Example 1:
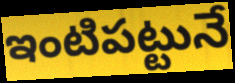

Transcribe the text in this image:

ఇంటిపట్టునే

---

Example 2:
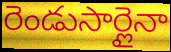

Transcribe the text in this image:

రెండుసార్లైనా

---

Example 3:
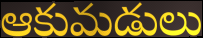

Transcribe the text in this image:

ఆకుమడులు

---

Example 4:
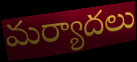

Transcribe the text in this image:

మర్యాదలు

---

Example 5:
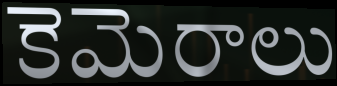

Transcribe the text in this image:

కెమెరాలు